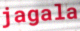
jagala